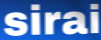
sirai